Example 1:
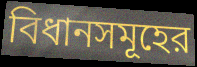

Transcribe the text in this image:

বিধানসমূহের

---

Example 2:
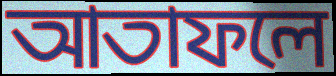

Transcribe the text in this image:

আতাফলে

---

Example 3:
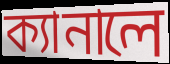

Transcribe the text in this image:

ক্যানালে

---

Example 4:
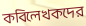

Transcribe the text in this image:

কবিলেখকদের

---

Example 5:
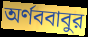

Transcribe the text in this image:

অর্ণববাবুর